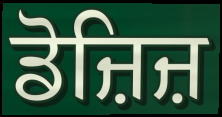
ਡੋਜ਼ਿਜ਼